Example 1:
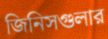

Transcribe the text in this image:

জিনিসগুলার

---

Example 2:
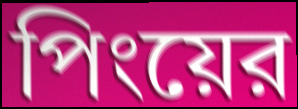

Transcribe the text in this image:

পিংয়ের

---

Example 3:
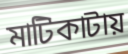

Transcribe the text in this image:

মাটিকাটায়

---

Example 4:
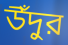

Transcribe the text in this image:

উঁদুর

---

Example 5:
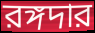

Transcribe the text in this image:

রঙ্গদার